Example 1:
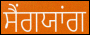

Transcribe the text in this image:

ਸੈਂਗਯਾਂਗ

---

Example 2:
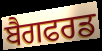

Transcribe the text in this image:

ਬੈਗਫਰਡ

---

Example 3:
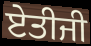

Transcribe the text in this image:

ਏਤੀਜੀ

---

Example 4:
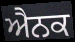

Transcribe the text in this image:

ਐਨਕ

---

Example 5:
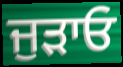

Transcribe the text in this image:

ਜੁੜਾਓ